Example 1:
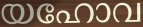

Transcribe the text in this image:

യഹോവ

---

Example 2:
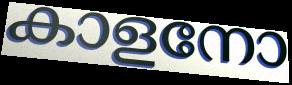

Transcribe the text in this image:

കാളനോ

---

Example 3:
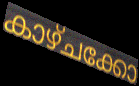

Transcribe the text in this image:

കാഴ്ചക്കോ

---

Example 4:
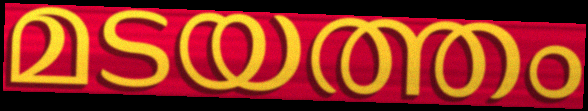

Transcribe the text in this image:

മടയത്തം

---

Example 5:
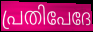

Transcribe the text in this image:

പ്രതിപേദേ